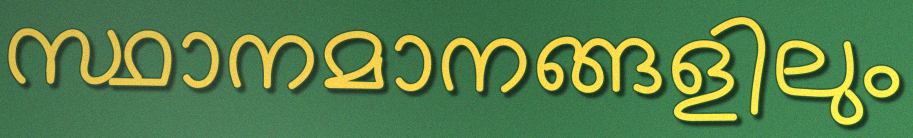
സ്ഥാനമാനങ്ങളിലും